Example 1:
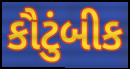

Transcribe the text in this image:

કૌટુંબીક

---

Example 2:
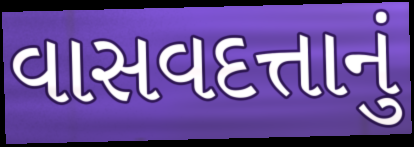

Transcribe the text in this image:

વાસવદત્તાનું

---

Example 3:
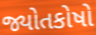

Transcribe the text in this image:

જ્યોતકોષો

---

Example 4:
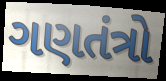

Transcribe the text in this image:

ગણતંત્રો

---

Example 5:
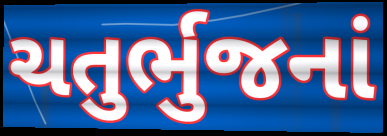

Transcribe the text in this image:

ચતુર્ભુજનાં